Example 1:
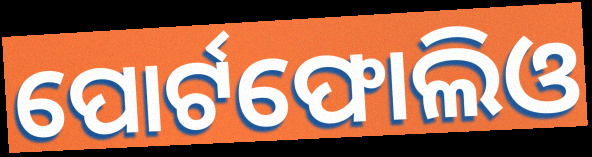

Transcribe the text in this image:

ପୋର୍ଟଫୋଲିଓ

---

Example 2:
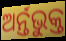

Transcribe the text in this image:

ଅର୍ନ୍ତଭୁକ୍ତ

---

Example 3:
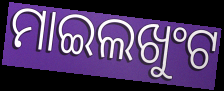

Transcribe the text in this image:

ମାଇଲଖୁଂଟ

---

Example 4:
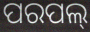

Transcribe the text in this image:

ପରପଲ୍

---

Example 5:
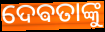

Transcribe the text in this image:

ଦେଵତାଙ୍କୁ